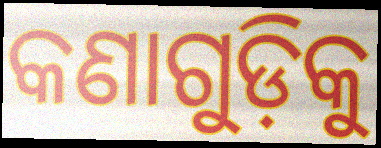
କଣାଗୁଡ଼ିକୁ